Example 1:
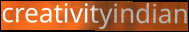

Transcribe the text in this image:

creativityindian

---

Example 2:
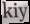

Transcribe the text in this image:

kiy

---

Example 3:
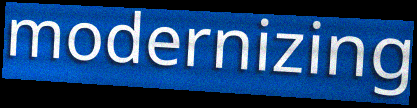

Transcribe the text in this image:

modernizing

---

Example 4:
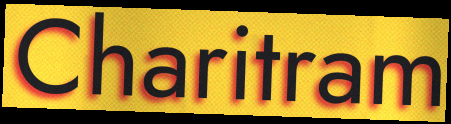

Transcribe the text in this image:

Charitram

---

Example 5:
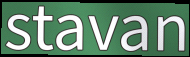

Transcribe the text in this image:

stavan